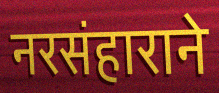
नरसंहाराने